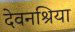
देवनश्रिया